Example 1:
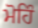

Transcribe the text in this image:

ਮੋਹਿੰ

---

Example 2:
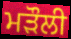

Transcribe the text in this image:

ਮੜੌਲੀ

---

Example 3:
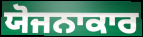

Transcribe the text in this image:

ਯੋਜਨਾਕਾਰ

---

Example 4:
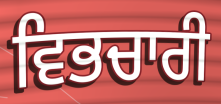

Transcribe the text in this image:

ਵਿਭਚਾਰੀ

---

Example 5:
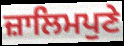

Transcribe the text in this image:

ਜ਼ਾਲਿਮਪੁਣੇ